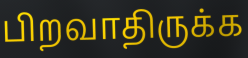
பிறவாதிருக்க